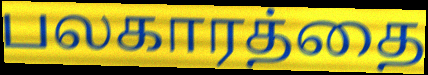
பலகாரத்தை